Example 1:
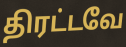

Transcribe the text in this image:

திரட்டவே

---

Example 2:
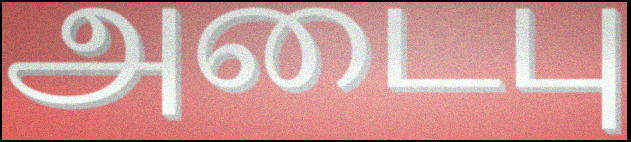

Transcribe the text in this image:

அடைபு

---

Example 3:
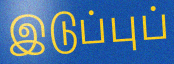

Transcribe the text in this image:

இடுப்புப்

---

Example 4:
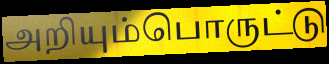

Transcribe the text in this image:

அறியும்பொருட்டு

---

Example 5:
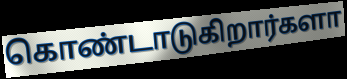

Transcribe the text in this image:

கொண்டாடுகிறார்களா